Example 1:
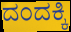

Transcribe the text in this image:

ದಂದಕ್ಕಿ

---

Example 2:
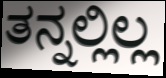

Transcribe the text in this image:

ತನ್ನಲ್ಲಿಲ್ಲ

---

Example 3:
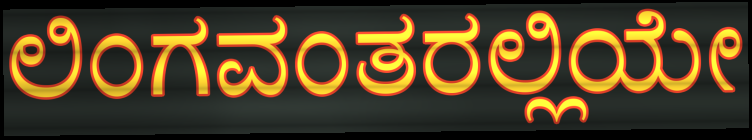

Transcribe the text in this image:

ಲಿಂಗವಂತರಲ್ಲಿಯೇ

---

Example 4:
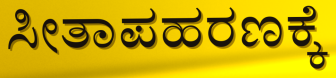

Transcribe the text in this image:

ಸೀತಾಪಹರಣಕ್ಕೆ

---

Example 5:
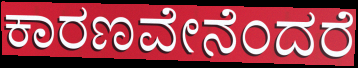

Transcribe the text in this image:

ಕಾರಣವೇನೆಂದರೆ